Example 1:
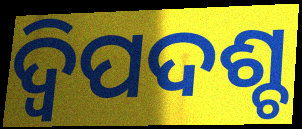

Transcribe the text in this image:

ଦ୍ବିପଦଶ୍ଚ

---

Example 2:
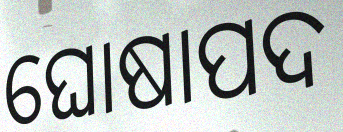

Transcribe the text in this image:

ଘୋଷାପଦ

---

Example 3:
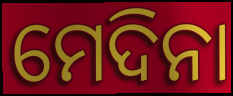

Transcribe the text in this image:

ମେଦିନା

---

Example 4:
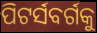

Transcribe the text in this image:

ପିଟର୍ସବର୍ଗକୁ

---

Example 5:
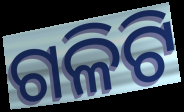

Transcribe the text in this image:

ଗଳିଟି